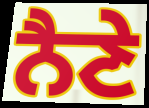
ਨੈਣੇ